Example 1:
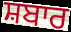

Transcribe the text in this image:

ਸ਼ਬਾਰ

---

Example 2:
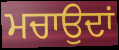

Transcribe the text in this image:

ਮਚਾਉਦਾਂ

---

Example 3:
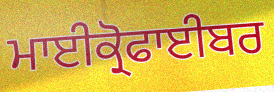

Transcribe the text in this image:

ਮਾਈਕ੍ਰੋਫਾਈਬਰ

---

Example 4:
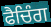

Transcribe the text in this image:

ਫੈਚਿੰਗ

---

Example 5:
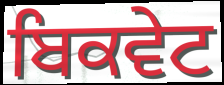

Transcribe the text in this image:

ਬਿਕਵੇਟ